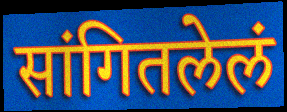
सांगितलेलं